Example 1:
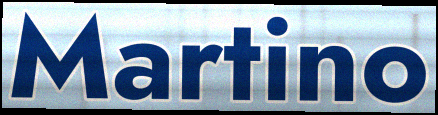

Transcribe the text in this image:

Martino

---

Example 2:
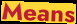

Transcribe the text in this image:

Means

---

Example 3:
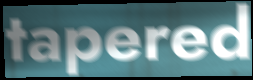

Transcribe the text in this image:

tapered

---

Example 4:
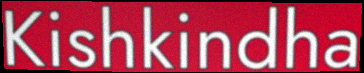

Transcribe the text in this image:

Kishkindha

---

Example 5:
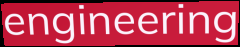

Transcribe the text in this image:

engineering